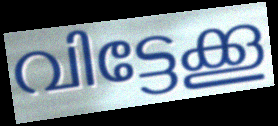
വിട്ടേക്കൂ